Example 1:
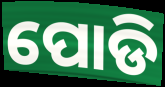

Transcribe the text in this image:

ପୋଡି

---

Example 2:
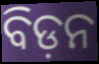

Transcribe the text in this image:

ବିଡ଼ନ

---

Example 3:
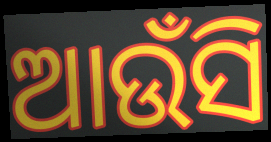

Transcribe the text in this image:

ଆଉଁସି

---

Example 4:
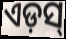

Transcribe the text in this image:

ଏଡ଼ସ୍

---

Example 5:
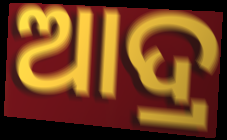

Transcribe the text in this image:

ଆଦ୍ର